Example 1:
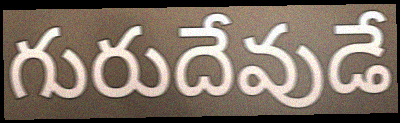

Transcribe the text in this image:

గురుదేవుడే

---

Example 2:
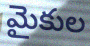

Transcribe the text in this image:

మైకుల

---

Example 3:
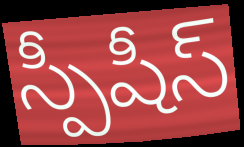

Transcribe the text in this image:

స్పీషీస్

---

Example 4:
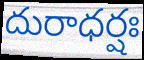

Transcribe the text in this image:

దురాధర్షః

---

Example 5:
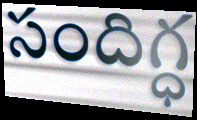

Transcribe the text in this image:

సందిగ్ధ